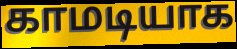
காமடியாக